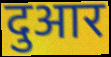
दुआर